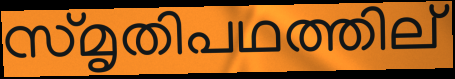
സ്മൃതിപഥത്തില്